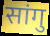
सांगु